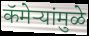
कॅमेऱ्यांमुळे